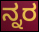
ನ್ನರ